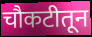
चौकटीतून